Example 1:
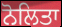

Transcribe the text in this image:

ਨੋਲਿਤਾ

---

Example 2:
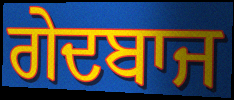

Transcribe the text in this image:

ਗੇਦਬਾਜ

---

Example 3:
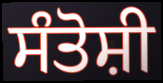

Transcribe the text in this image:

ਸੰਤੋਸ਼ੀ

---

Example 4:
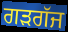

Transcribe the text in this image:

ਗਡ਼ਗੱਜ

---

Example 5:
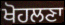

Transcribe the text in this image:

ਖੋਹਲਣਾ